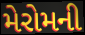
મેરોમની